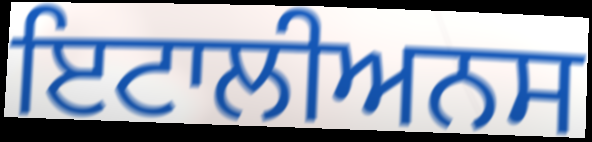
ਇਟਾਲੀਅਨਸ